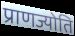
प्राणज्योति